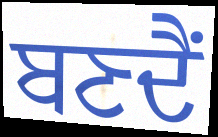
ਬਣਦੈਂ